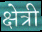
क्षेत्री